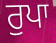
ਰੁਪਾ